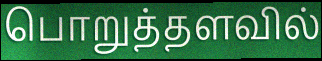
பொறுத்தளவில்